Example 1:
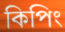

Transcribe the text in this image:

কিপিং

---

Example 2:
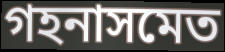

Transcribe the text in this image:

গহনাসমেত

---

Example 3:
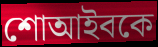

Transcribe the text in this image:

শোআইবকে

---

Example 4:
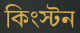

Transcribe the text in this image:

কিংস্টন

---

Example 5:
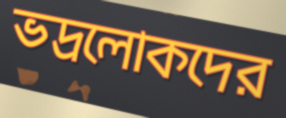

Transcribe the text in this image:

ভদ্রলোকদের